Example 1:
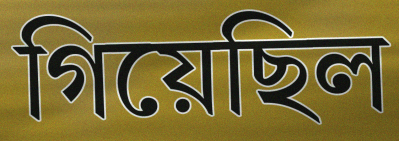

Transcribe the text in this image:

গিয়েছিল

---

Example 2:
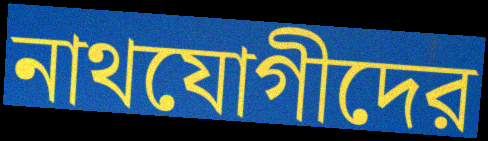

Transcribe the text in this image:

নাথযোগীদের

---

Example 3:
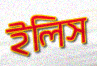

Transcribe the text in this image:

ইলিস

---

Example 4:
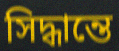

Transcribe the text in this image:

সিদ্ধান্তে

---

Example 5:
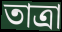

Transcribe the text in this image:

তাত্রা